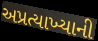
અપ્રત્યાખ્યાની